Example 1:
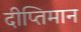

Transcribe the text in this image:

दीप्तिमान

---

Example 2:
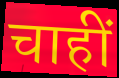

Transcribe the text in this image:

चाहीं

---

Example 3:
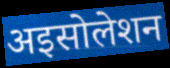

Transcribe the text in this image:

अइसोलेशन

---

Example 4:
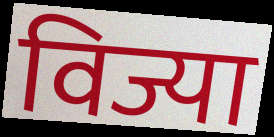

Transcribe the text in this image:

विज्या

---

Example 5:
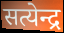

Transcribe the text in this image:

सत्येन्द्र